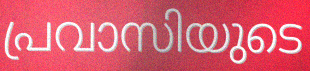
പ്രവാസിയുടെ